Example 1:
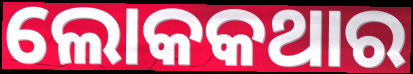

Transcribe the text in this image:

ଲୋକକଥାର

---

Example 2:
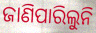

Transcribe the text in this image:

ଜାଣିପାରିଲୁନି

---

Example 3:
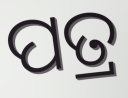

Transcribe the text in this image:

ପତ୍ର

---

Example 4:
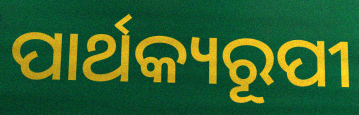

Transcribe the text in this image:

ପାର୍ଥକ୍ୟରୂପୀ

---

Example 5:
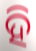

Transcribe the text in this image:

ହି